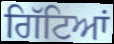
ਗਿੱਟਿਆਂ